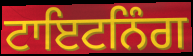
ਟਾਇਟਨਿੰਗ